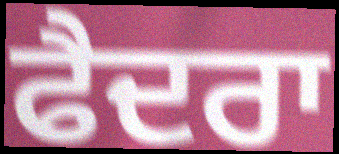
ਫੈਦਰਾ